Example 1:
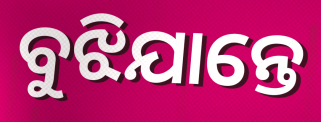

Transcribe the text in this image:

ବୁଝିଯାନ୍ତେ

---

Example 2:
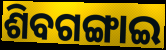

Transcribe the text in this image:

ଶିବଗଙ୍ଗାଇ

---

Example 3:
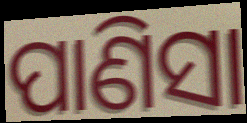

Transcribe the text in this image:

ପାଣିସା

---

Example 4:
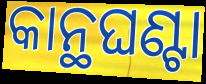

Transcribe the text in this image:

କାନ୍ଥଘଣ୍ଟା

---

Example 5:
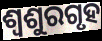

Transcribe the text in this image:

ଶ୍ୱଶୁରଗୃହ